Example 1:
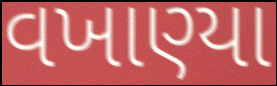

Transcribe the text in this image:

વખાણ્યા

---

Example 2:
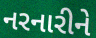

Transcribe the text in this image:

નરનારીને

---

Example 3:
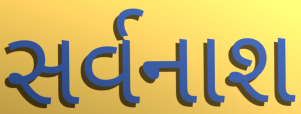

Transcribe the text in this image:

સર્વનાશ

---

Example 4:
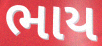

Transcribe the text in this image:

ભાય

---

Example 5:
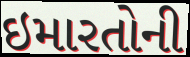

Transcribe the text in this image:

ઇમારતોની